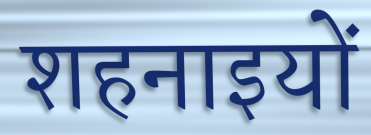
शहनाइयों